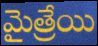
మైత్రేయి